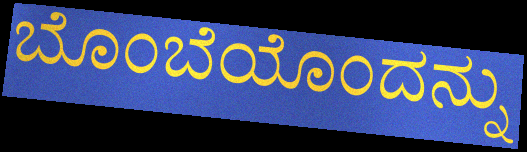
ಬೊಂಬೆಯೊಂದನ್ನು